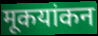
मूकयांकन